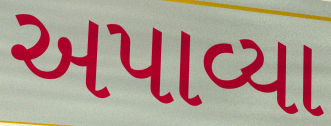
અપાવ્યા